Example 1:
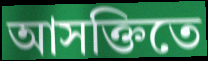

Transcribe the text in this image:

আসক্তিতে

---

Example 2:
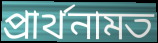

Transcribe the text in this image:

প্রার্থনামত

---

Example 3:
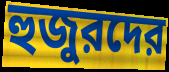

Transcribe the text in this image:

হুজুরদের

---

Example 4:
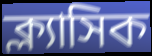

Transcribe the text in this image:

ক্ল্যাসিক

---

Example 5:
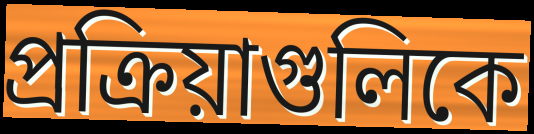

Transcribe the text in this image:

প্রক্রিয়াগুলিকে